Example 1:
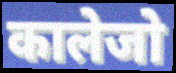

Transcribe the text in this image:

कालेजो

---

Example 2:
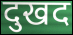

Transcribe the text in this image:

दुखद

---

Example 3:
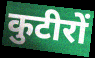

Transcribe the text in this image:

कुटीरों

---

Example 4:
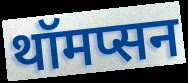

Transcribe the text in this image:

थॉमप्सन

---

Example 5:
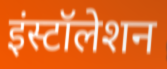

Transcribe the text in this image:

इंस्टॉलेशन